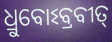
ଧ୍ରୁବୋଽବ୍ରବୀତ୍